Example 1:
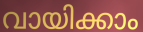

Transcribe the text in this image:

വായിക്കാം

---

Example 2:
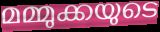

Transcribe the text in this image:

മമ്മുക്കയുടെ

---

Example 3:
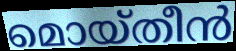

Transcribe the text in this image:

മൊയ്തീൻ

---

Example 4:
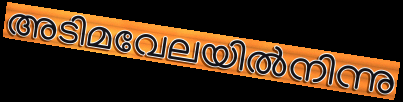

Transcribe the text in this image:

അടിമവേലയിൽനിന്നു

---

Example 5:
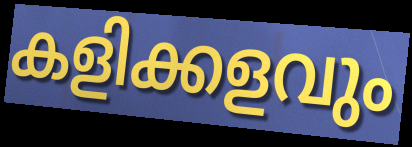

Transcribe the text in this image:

കളിക്കളവും